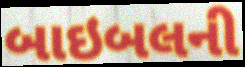
બાઇબલની